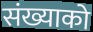
संख्याको